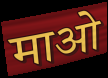
माओ